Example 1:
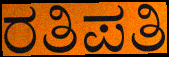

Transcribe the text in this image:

ರತಿಪತಿ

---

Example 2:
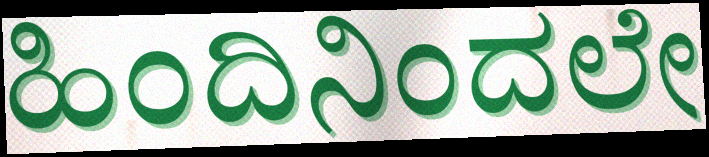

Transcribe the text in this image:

ಹಿಂದಿನಿಂದಲೇ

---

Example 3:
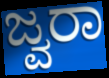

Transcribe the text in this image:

ಜ್ವರಾ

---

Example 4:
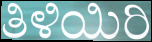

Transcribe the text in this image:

ತಿಳಿಯಿರಿ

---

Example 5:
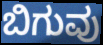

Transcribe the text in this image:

ಬಿಗುವು